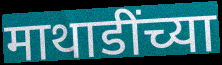
माथाडींच्या